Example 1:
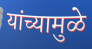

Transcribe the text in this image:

यांच्यामुळे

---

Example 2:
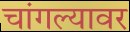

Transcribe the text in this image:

चांगल्यावर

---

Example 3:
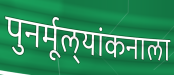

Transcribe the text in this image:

पुनर्मूल्यांकनाला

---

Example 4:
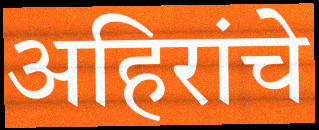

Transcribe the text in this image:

अहिरांचे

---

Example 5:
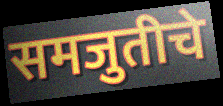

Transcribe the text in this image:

समजुतीचे